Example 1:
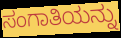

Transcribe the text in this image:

ಸಂಗಾತಿಯನ್ನು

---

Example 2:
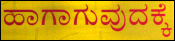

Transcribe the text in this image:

ಹಾಗಾಗುವುದಕ್ಕೆ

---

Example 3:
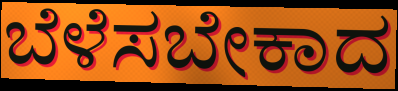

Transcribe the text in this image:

ಬೆಳೆಸಬೇಕಾದ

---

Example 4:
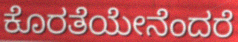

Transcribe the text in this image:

ಕೊರತೆಯೇನೆಂದರೆ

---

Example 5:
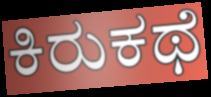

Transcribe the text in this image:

ಕಿರುಕಥೆ